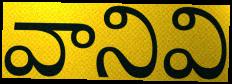
వానివి